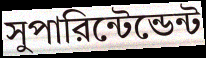
সুপারিন্টেন্ডেন্ট